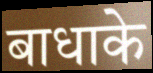
बाधाके